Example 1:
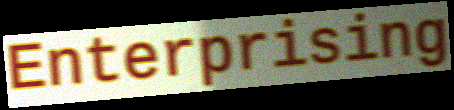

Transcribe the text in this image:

Enterprising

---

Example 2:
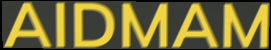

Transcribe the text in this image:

AIDMAM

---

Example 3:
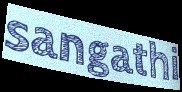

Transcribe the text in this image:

sangathi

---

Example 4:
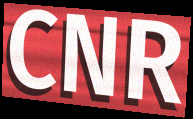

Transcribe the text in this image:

CNR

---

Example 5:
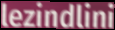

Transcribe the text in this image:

lezindlini